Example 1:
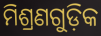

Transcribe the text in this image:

ମିଶ୍ରଣଗୁଡ଼ିକ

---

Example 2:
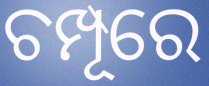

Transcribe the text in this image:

ଚମ୍ପୂରେ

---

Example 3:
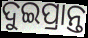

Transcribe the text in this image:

ଦୁଇପ୍ରାନ୍ତ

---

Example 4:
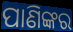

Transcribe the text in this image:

ପାଣିଙ୍କର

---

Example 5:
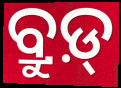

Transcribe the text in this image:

ବ୍ରୁଡ଼୍